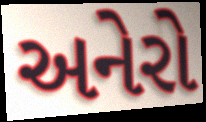
અનેરો